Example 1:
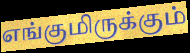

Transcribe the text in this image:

எங்குமிருக்கும்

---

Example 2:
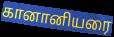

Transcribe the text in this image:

கானானியரை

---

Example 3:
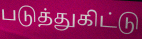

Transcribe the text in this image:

படுத்துகிட்டு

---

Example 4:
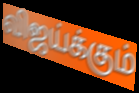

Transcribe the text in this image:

விஜய்க்கும்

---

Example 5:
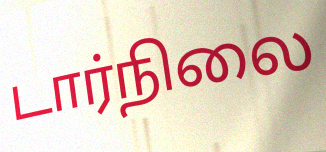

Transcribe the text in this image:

டார்நிலை